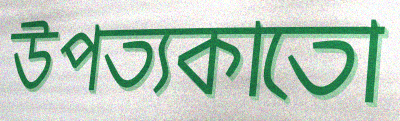
উপত্যকাতো